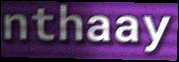
nthaay